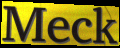
Meck